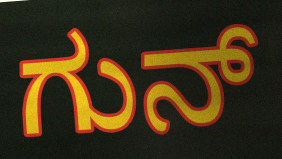
ಗುನ್